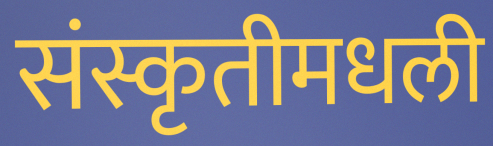
संस्कृतीमधली